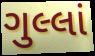
ગુલ્લાં